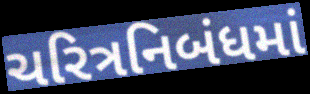
ચરિત્રનિબંધમાં